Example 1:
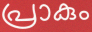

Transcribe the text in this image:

പ്രാകും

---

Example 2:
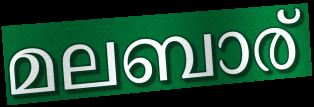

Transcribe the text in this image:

മലബാര്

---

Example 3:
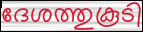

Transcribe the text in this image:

ദേശത്തുകൂടി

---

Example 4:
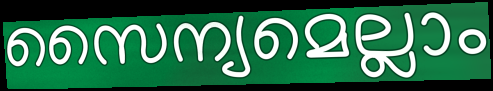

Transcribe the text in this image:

സൈന്യമെല്ലാം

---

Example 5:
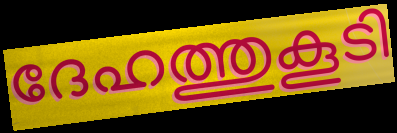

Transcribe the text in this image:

ദേഹത്തുകൂടി